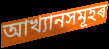
আখ্যানসমূহৰ